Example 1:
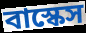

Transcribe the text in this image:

বাস্কেস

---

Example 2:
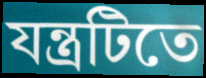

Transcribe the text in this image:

যন্ত্রটিতে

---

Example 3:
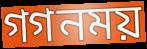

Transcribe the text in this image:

গগনময়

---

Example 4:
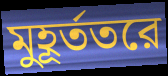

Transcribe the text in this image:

মুহূর্ততরে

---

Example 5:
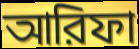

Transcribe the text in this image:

আরিফা